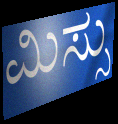
ಮಿಸ್ಸು